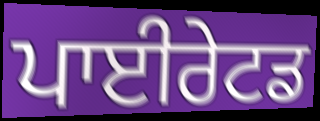
ਪਾਈਰੇਟਡ